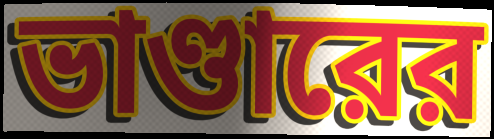
ভাণ্ডারের